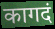
कागदं